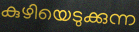
കുഴിയെടുക്കുന്ന